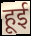
हूई